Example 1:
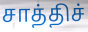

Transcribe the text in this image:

சாத்திச்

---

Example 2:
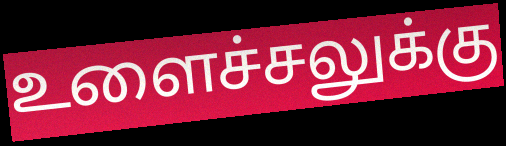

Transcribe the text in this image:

உளைச்சலுக்கு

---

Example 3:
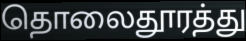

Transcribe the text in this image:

தொலைதூரத்து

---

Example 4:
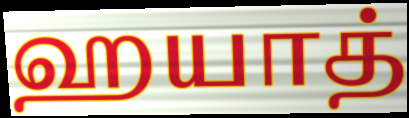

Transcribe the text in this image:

ஹயாத்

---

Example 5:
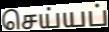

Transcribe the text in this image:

செய்யப்